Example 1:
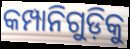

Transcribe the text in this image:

କମ୍ପାନିଗୁଡ଼ିକୁ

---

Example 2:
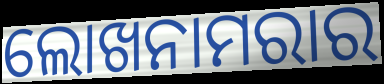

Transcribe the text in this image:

ଲୋଖନାମରାର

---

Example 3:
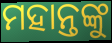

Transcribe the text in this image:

ମହାନ୍ତଙ୍କୁ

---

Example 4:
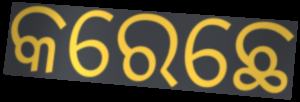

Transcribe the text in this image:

କରେଛେ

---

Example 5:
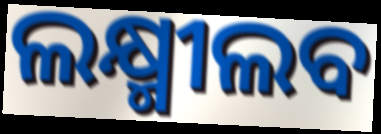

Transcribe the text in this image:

ଲକ୍ଷ୍ମୀଲବ